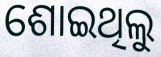
ଶୋଇଥିଲୁ